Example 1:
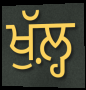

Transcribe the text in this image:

ਖੁੱਲ਼੍ਹ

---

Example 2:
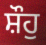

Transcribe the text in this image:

ਸ਼ੌਹੁ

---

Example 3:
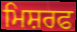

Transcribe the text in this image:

ਮਿਸ਼ਰਫ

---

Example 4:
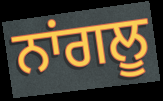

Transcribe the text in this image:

ਨਾਂਗਲੂ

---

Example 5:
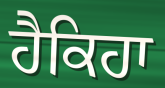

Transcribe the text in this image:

ਹੈਕਿਹਾ